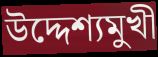
উদ্দেশ্যমুখী